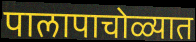
पालापाचोळ्यात